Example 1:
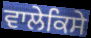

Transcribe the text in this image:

ਵਾਲੇਕਿਸੇ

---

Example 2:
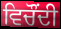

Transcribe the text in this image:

ਵਿਚੌਂਦੀ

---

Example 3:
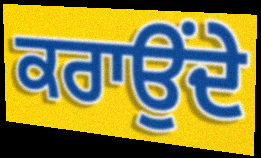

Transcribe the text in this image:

ਕਰਾਉੰਦੇ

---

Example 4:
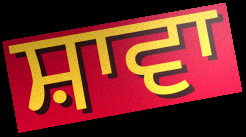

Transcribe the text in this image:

ਸ਼ਾਵਾ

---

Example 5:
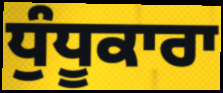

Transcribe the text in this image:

ਧੁੰਧੂਕਾਰਾ